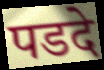
पडदे